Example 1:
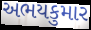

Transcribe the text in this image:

અભયકુમાર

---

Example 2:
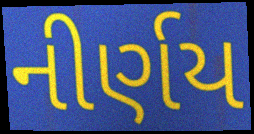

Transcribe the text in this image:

નીર્ણય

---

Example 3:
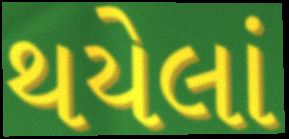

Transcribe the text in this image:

થયેલાં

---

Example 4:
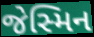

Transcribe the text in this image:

જેસ્મિન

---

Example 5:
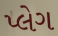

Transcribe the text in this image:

પ્લેગ